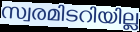
സ്വരമിടറിയില്ല